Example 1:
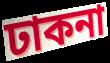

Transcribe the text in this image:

ঢাকনা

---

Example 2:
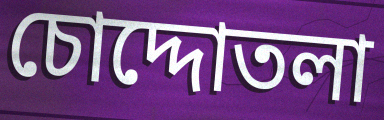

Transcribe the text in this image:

চোদ্দোতলা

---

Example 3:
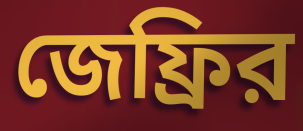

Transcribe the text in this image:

জেফ্রির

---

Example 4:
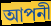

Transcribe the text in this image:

আপনী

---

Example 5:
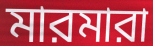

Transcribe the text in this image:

মারমারা